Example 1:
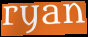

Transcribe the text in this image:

ryan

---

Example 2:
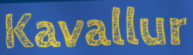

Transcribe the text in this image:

Kavallur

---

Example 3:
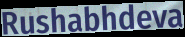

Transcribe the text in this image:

Rushabhdeva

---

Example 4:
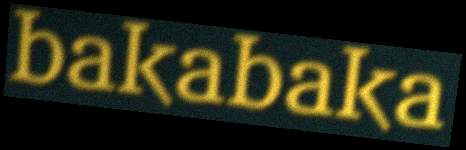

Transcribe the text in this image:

bakabaka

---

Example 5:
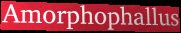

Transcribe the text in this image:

Amorphophallus